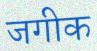
जगीक